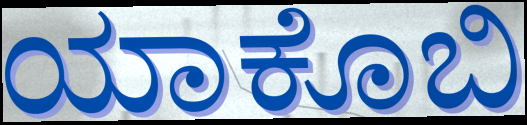
ಯಾಕೊಬಿ